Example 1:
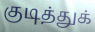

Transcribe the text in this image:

குடித்துக்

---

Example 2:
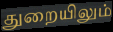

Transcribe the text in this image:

துறையிலும்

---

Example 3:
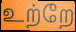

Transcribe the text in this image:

உற்றே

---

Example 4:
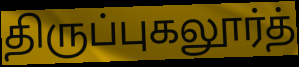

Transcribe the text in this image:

திருப்புகலூர்த்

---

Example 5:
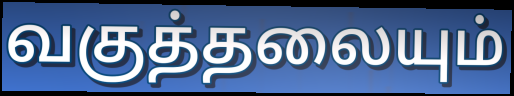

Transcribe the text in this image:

வகுத்தலையும்